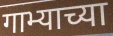
गाभ्याच्या